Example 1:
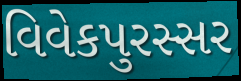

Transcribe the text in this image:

વિવેકપુરસ્સર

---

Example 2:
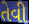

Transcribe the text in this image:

તેવી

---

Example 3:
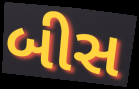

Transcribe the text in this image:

બીસ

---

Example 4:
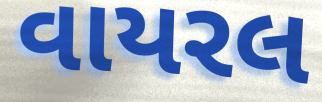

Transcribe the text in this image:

વાયરલ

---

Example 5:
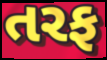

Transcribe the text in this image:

તરફ